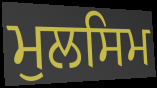
ਮੁਲਸਿਮ